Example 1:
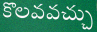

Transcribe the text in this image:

కొలవవచ్చు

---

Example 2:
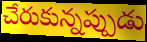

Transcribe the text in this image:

చేరుకున్నప్పుడు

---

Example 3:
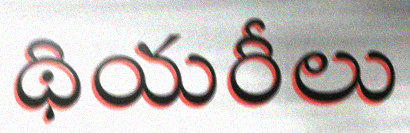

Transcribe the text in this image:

థియరీలు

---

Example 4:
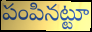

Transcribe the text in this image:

పంపినట్టూ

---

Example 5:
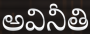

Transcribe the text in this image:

అవినీతి